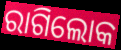
ରାଗିଲୋକ